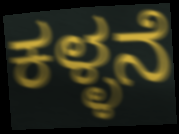
ಕಳ್ಳನೆ